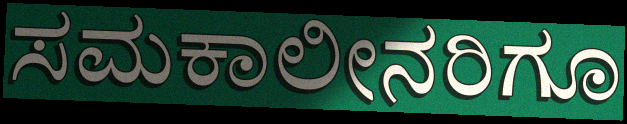
ಸಮಕಾಲೀನರಿಗೂ